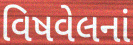
વિષવેલનાં